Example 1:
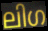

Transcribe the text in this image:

ലിഗ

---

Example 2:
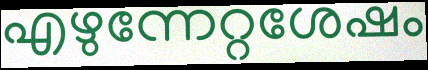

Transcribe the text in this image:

എഴുന്നേറ്റശേഷം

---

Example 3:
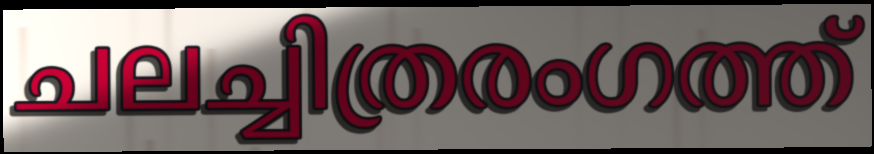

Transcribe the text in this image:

ചലച്ചിത്രരംഗത്ത്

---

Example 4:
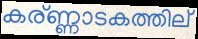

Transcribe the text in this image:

കര്ണ്ണാടകത്തില്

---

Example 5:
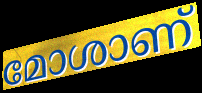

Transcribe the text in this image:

മോശാണ്